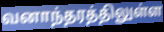
வனாந்தரத்திலுள்ள